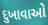
દુખાવાઓ